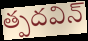
త్పదవిన్